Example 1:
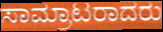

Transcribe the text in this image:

ಸಾಮ್ರಾಟರಾದರು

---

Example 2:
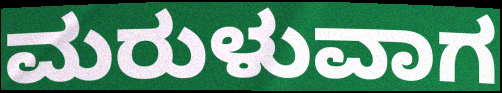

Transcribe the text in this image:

ಮರುಳುವಾಗ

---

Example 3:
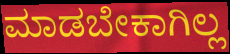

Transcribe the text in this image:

ಮಾಡಬೇಕಾಗಿಲ್ಲ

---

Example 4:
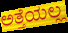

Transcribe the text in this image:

ಅತ್ತೆಯಲ್ಲ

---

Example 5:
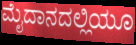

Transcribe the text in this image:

ಮೈದಾನದಲ್ಲಿಯೂ